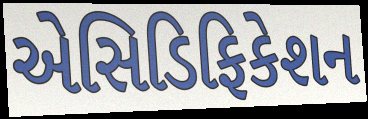
એસિડિફિકેશન